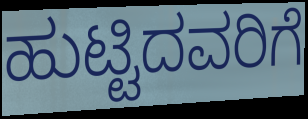
ಹುಟ್ಟಿದವರಿಗೆ